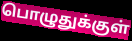
பொழுதுக்குள்